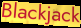
Blackjack